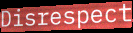
Disrespect